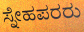
ಸ್ನೇಹಪರರು